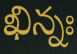
ఖిన్నః